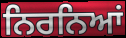
ਨਿਰਨਿਆਂ